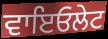
ਵਾਇਓਲੇਟ